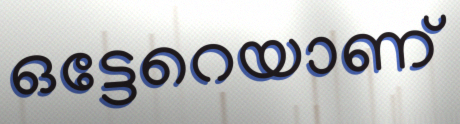
ഒട്ടേറെയാണ്